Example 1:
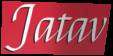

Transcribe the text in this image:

Jatav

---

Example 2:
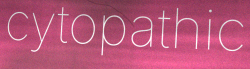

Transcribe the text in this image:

cytopathic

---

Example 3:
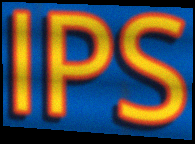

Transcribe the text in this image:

IPS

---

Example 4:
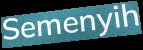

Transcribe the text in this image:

Semenyih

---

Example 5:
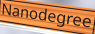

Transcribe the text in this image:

Nanodegree